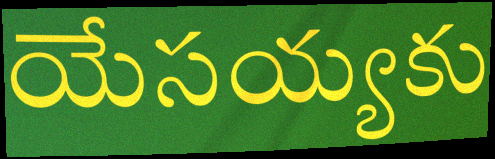
యేసయ్యకు